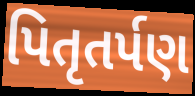
પિતૃતર્પણ